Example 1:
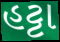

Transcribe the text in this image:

હટ્ટા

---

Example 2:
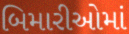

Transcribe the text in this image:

બિમારીઓમાં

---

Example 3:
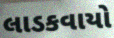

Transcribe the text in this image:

લાડકવાયો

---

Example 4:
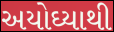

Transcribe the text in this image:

અયોઘ્યાથી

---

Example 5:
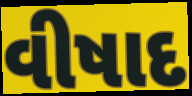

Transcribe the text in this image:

વીષાદ